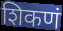
शिकणं